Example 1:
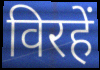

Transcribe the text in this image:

विरहें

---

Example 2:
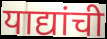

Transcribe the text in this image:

याद्यांची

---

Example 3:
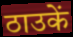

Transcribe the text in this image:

ठाउकें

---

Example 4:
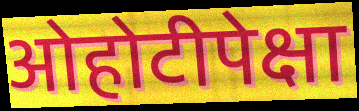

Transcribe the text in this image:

ओहोटीपेक्षा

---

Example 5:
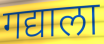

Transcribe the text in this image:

गद्याला